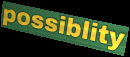
possiblity